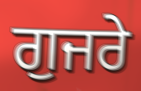
ਗੁਜਰੇ